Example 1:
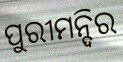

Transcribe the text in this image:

ପୁରୀମନ୍ଦିର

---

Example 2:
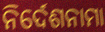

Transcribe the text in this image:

ନିର୍ଦେଶନାମା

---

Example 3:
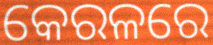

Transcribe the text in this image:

କେରଳରେ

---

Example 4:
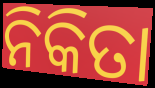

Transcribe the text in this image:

ନିକିତା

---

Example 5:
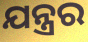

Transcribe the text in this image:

ଯନ୍ତ୍ରର